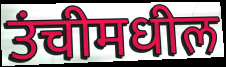
उंचीमधील